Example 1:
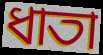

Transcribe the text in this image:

ধাতা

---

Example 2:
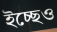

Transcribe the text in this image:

ইচ্ছেও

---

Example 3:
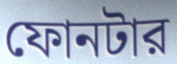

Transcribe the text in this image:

ফোনটার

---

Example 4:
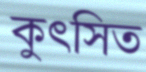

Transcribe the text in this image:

কুৎসিত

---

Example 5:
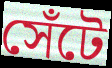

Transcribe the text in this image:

সেঁটে